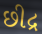
છીદ્ર